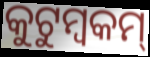
କୁଟୁମ୍ବକମ୍